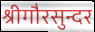
श्रीगौरसुन्दर